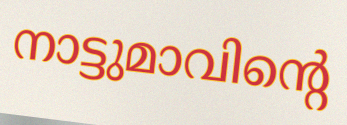
നാട്ടുമാവിന്റെ